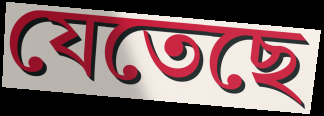
যেতেছে